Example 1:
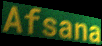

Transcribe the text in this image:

Afsana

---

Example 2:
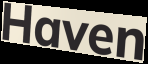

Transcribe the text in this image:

Haven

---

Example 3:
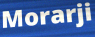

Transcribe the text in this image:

Morarji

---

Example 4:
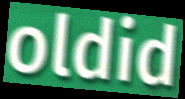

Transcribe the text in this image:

oldid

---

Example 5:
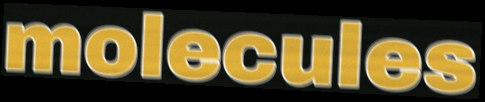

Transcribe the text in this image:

molecules